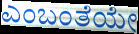
ಎಂಬಂತೆಯೇ